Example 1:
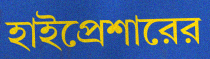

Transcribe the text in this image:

হাইপ্রেশারের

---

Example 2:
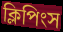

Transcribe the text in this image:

ক্লিপিংস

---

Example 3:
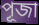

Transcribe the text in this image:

পূজা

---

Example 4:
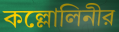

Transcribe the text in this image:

কল্লোলিনীর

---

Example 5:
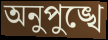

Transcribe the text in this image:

অনুপুঙ্খে